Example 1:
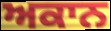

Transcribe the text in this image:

ਅਕਾਨ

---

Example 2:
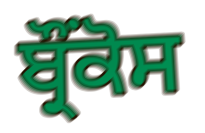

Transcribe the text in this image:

ਬ੍ਰੌਂਕੋਸ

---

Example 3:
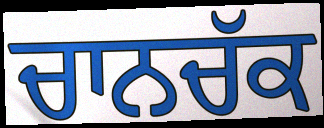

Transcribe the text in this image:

ਚਾਨਚੱਕ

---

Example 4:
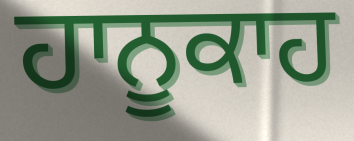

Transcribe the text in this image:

ਹਾਨੂਕਾਹ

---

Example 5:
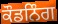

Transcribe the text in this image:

ਕੌਡਨਿੰਗ